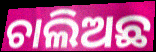
ଚାଲିଅଛ